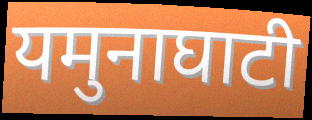
यमुनाघाटी